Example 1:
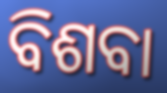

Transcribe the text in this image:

ବିଶବା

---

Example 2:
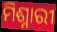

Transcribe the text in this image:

ମିଶ୍ନାରୀ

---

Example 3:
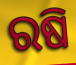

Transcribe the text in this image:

ରଷି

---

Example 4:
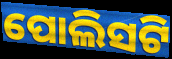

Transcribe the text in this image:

ପୋଲିସଟି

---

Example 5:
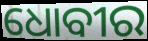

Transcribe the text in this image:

ଧୋବୀର